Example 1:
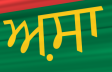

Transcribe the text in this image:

ਅ਼ਸਾ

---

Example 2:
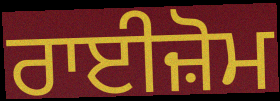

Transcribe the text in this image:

ਰਾਈਜ਼ੋਮ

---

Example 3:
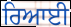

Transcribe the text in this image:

ਰਿਆਈ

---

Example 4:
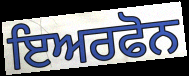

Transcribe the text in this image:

ਇਅਰਫੋਨ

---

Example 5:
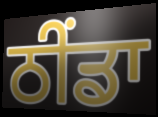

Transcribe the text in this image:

ਠੀਂਡਾ